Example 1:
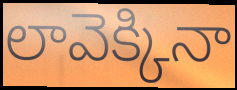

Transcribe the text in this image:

లావెక్కినా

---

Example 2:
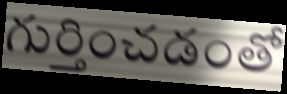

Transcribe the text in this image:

గుర్తించడంతో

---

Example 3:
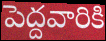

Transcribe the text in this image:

పెద్దవారికి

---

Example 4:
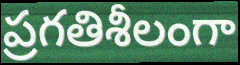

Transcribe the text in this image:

ప్రగతిశీలంగా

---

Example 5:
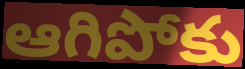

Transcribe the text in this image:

ఆగిపోకు